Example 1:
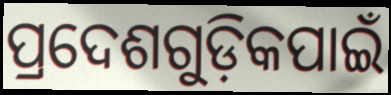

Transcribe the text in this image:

ପ୍ରଦେଶଗୁଡ଼ିକପାଇଁ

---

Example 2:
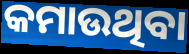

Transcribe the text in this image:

କମାଉଥିବା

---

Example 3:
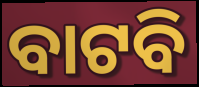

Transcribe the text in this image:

ବାଟବି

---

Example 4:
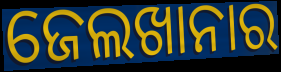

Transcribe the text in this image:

ଜେଲଖାନାର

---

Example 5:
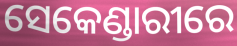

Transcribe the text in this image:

ସେକେଣ୍ଡାରୀରେ